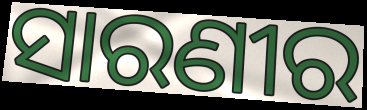
ସାରଣୀର